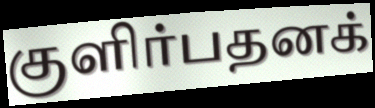
குளிர்பதனக்